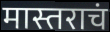
मास्तराचं